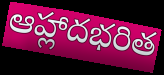
ఆహ్లాదభరిత